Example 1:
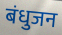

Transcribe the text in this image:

बंधुजन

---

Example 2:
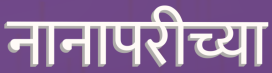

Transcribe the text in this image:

नानापरीच्या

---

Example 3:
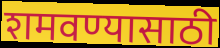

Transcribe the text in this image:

शमवण्यासाठी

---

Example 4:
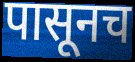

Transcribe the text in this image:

पासूनच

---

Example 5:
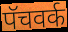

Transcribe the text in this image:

पॅचवर्क